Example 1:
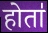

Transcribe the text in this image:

होता॑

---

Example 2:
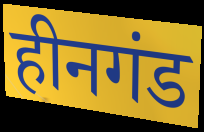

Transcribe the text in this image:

हीनगंड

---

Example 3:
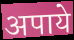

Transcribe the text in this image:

अपाये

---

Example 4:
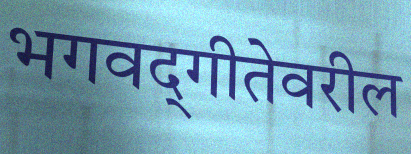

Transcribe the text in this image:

भगवद्‌गीतेवरील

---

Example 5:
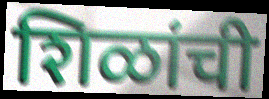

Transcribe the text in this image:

शिळांची